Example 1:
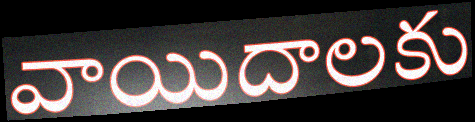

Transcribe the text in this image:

వాయిదాలకు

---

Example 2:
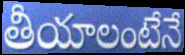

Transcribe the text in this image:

తీయాలంటేనే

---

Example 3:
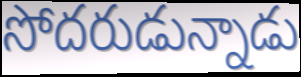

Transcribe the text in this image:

సోదరుడున్నాడు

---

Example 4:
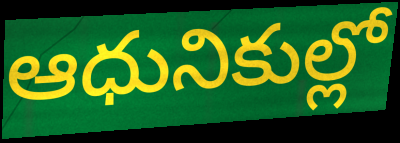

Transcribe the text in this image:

ఆధునికుల్లో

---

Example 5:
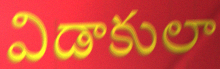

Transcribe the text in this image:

విడాకులా